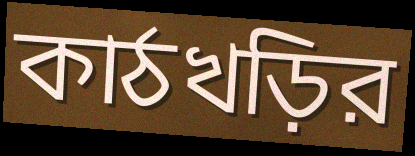
কাঠখড়ির